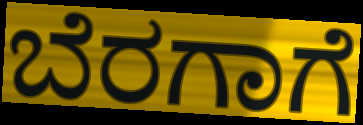
ಬೆರಗಾಗೆ